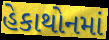
હેકાથોનમાં